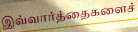
இவ்வார்த்தைகளைச்